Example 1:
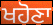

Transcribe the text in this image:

ਖਹੋਣਾ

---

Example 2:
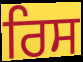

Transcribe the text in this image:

ਰਿਸ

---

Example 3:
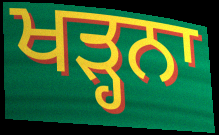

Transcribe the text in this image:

ਖੜ੍ਹਨਾ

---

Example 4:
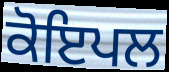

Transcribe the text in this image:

ਕੋਇਪਲ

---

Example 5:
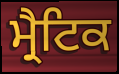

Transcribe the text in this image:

ਮ੍ਰੈਟਿਕ